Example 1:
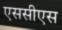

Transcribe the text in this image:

एससीएस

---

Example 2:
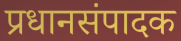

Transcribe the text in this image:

प्रधानसंपादक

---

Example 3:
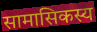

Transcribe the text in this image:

सामासिकस्य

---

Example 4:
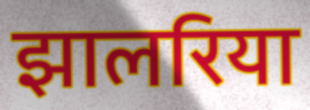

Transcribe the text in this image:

झालरिया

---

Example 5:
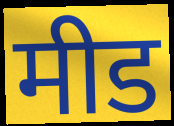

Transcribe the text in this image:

मीड